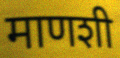
माणशी